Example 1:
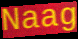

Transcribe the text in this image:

Naag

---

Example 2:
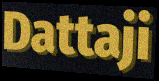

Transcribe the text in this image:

Dattaji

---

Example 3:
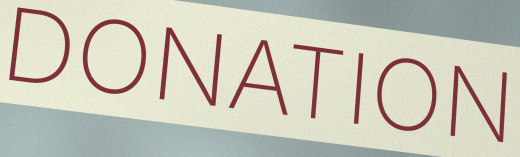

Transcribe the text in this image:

DONATION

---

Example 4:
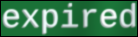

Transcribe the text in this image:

expired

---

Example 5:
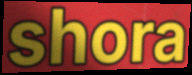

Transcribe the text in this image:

shora